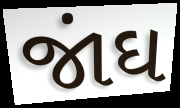
જાંઘ